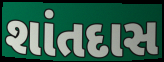
શાંતદાસ